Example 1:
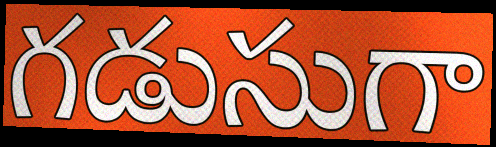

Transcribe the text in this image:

గడుసుగా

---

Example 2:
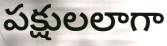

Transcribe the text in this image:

పక్షులలాగా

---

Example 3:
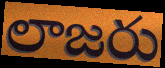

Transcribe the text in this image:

లాజరు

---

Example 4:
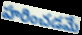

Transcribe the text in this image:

హరించడమే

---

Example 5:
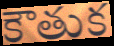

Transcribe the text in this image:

కౌతుక